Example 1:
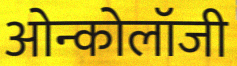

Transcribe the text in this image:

ओन्कोलॉजी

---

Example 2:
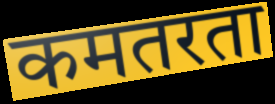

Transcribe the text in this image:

कमतरता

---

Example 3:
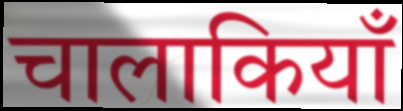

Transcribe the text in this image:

चालाकियाँ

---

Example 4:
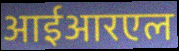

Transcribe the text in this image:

आईआरएल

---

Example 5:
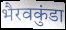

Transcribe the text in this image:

भैरवकुंडा